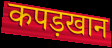
कपड़खान